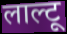
लाल्‍टू